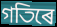
গতিৰে